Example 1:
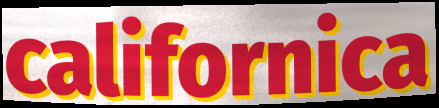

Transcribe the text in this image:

californica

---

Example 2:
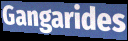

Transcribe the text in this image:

Gangarides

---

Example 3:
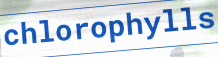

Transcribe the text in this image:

chlorophylls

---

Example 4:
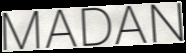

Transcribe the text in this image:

MADAN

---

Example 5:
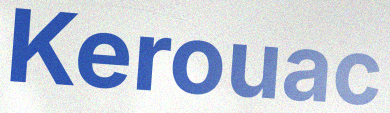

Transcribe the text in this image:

Kerouac